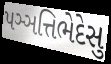
પઞ્ઞત્તિભેદેસુ